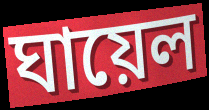
ঘায়েল